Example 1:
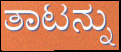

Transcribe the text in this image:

ತಾಟನ್ನು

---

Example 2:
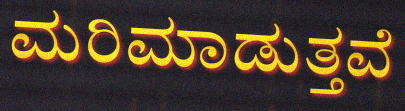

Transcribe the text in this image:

ಮರಿಮಾಡುತ್ತವೆ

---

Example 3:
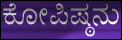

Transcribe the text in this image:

ಕೋಪಿಷ್ಠನು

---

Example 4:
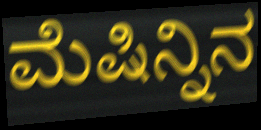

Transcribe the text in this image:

ಮೆಷಿನ್ನಿನ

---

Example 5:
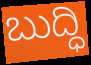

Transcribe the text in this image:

ಬುದ್ಧಿ